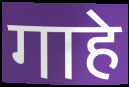
गाहे